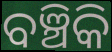
ବଞ୍ଚିକି